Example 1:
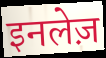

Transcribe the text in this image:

इनलेज़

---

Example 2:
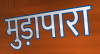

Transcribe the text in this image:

मुड़ापारा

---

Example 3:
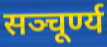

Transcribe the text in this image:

सञ्चूर्ण्य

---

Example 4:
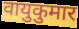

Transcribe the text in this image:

वायुकुमार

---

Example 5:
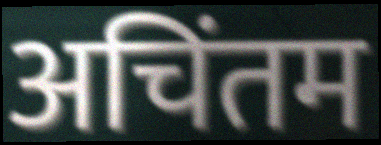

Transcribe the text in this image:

अचिंतम